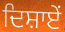
ਦਿਸ਼ਾਏਂ